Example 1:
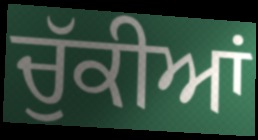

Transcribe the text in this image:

ਚੁੱਕੀਆਂ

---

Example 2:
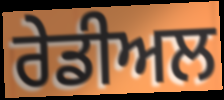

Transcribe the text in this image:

ਰੇਡੀਅਲ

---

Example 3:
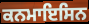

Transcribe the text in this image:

ਕਨਮਾਇਸਿਨ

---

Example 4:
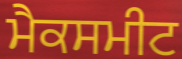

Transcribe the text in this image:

ਮੈਕਸਮੀਟ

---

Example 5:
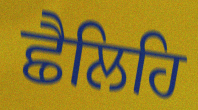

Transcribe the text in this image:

ਛੈਲਿਹਿ